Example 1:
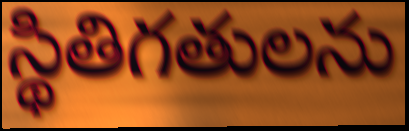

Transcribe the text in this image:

స్థితిగతులను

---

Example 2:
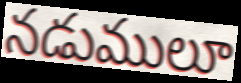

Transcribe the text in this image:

నడుములూ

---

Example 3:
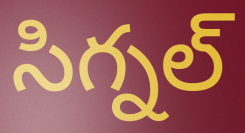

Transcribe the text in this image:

సిగ్నల్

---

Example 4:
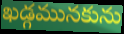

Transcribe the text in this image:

ఖడ్గమునకును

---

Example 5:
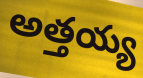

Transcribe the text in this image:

అత్తయ్య